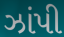
ઝાંપી